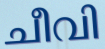
ചീവി